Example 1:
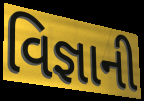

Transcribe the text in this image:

વિજ્ઞાની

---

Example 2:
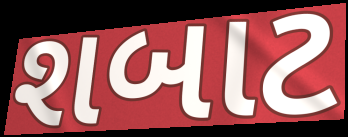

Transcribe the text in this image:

શબાટ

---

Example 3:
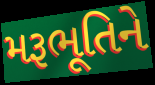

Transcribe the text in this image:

મરૂભૂતિને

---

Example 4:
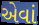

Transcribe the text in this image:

એવાં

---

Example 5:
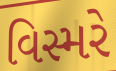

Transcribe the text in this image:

વિસ્મરે